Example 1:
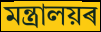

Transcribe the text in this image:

মন্ত্ৰালয়ৰ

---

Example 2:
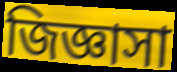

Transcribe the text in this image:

জিজ্ঞাসা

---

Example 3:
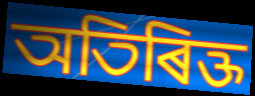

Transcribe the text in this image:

অতিৰিক্ত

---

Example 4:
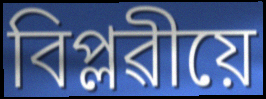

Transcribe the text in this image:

বিপ্লৱীয়ে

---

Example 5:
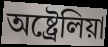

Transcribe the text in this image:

অষ্ট্ৰেলিয়া